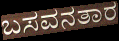
ಬಸವನತಾರ